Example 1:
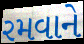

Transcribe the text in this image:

રમવાને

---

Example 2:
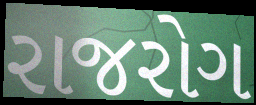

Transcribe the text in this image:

રાજરોગ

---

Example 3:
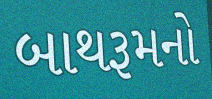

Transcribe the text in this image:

બાથરૂમનો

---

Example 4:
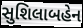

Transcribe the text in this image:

સુશિલાબહેન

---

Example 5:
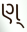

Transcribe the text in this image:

ણ્